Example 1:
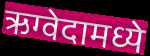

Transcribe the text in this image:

ऋग्वेदामध्ये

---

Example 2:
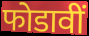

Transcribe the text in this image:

फोडावीं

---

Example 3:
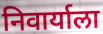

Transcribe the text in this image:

निवार्याला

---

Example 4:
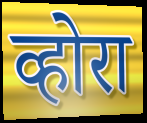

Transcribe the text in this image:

व्होरा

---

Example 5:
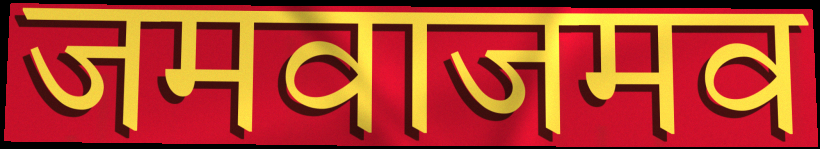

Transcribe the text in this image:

जमवाजमव